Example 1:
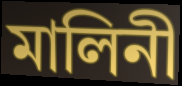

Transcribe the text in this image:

মালিনী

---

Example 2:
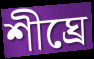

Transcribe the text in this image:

শীঘ্ৰে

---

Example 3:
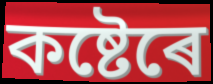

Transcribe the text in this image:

কষ্টেৰে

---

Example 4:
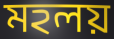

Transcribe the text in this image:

মহলয়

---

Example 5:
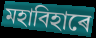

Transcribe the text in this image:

মহাবিহাৰে